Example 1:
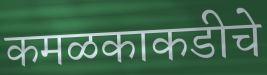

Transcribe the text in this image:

कमळकाकडीचे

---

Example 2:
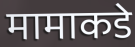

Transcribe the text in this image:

मामाकडे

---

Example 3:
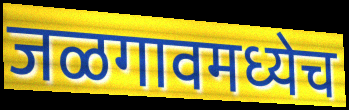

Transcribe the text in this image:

जळगावमध्येच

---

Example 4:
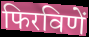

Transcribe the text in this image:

फिरविणें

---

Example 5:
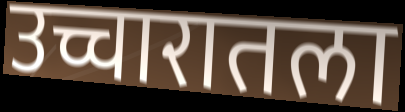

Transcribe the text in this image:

उच्चारातला